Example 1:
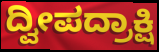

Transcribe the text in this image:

ದ್ವೀಪದ್ರಾಕ್ಷಿ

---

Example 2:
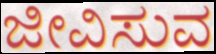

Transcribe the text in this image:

ಜೀವಿಸುವ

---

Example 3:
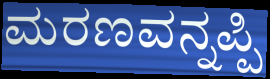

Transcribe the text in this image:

ಮರಣವನ್ನಪ್ಪಿ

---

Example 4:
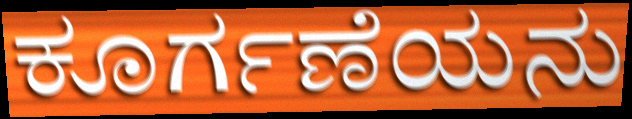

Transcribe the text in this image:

ಕೂರ್ಗಣೆಯನು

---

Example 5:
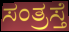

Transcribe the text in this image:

ಸಂತ್ರಸ್ತೆ